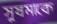
সুষমাকে